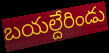
బయల్దేరిండు